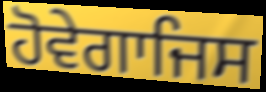
ਹੋਵੇਗਾਜਿਸ